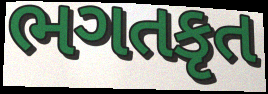
ભગતકૃત